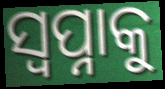
ସ୍ୱପ୍ନାକୁ